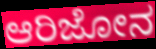
ಆರಿಜೋನ